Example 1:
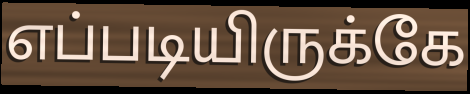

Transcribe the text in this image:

எப்படியிருக்கே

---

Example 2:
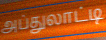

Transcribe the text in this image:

அப்துலாட்டி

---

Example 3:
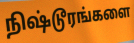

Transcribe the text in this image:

நிஷ்டூரங்களை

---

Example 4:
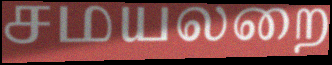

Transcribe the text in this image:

சமயலறை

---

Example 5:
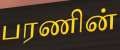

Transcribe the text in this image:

பரணின்